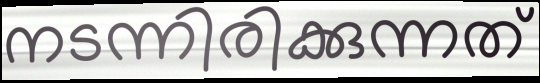
നടന്നിരിക്കുന്നത്